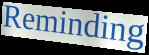
Reminding